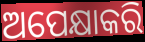
ଅପେକ୍ଷାକରି